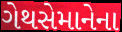
ગેથસેમાનેના